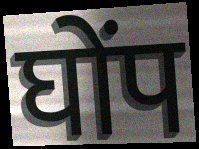
घोंप